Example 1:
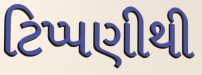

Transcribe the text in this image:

ટિપ્પણીથી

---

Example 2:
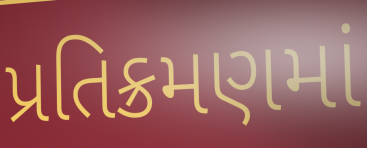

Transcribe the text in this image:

પ્રતિક્રમણમાં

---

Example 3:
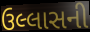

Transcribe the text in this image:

ઉલ્લાસની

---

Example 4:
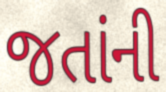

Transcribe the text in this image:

જતાંની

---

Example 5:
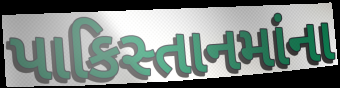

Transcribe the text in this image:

પાકિસ્તાનમાંના